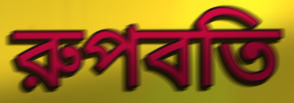
রুপবতি